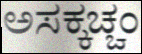
ಅಸಕ್ಕಚ್ಚಂ